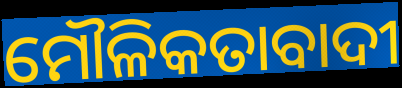
ମୌଳିକତାବାଦୀ